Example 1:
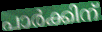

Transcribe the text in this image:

പാർക്കിന്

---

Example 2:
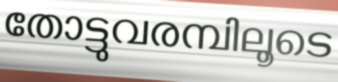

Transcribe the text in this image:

തോട്ടുവരമ്പിലൂടെ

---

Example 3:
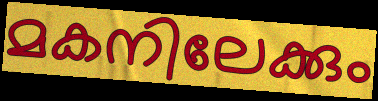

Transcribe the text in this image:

മകനിലേക്കും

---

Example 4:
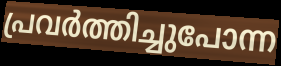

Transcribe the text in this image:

പ്രവർത്തിച്ചുപോന്ന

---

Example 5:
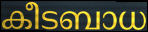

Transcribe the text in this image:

കീടബാധ